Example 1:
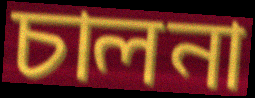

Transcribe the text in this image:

চালনা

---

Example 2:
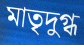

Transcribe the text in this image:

মাতৃদুগ্ধ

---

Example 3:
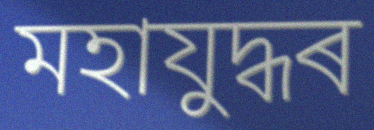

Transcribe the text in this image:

মহাযুদ্ধৰ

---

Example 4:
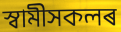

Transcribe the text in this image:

স্বামীসকলৰ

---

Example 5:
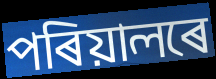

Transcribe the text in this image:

পৰিয়ালৰে